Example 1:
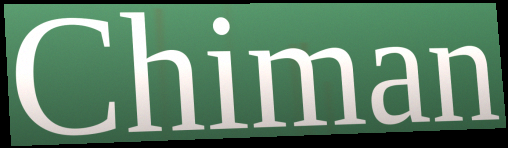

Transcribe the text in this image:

Chiman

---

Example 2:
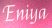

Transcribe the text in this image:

Eniya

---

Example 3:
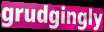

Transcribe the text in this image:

grudgingly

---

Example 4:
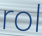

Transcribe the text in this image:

rol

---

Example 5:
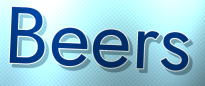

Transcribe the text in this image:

Beers